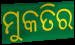
ମୁକତିର